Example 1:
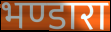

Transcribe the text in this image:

भण्डारा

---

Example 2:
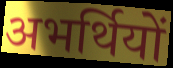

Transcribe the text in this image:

अभर्थियों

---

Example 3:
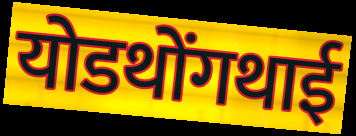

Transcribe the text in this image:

योडथोंगथाई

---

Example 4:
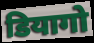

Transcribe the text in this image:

डियागो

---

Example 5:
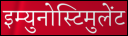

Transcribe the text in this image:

इम्युनोस्टिमुलेंट